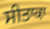
ਸੀਤਾਕਾ